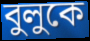
বুলুকে